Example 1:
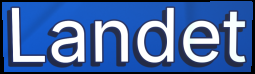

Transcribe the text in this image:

Landet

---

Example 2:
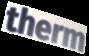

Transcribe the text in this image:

therm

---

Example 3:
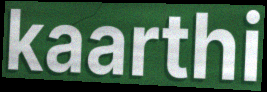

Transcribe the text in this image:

kaarthi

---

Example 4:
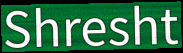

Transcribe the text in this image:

Shresht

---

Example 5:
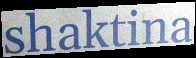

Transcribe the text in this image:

shaktina